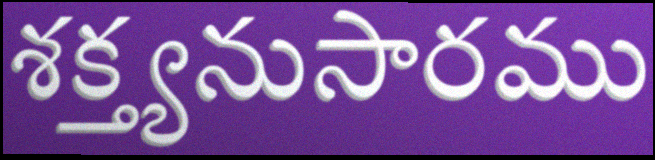
శక్త్యనుసారము